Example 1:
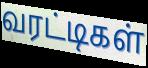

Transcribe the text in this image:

வரட்டிகள்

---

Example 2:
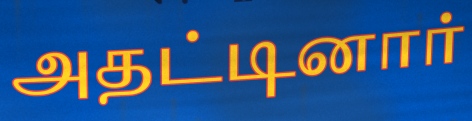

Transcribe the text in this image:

அதட்டினார்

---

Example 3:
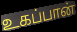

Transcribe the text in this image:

உகப்பான்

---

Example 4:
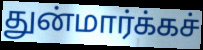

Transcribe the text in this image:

துன்மார்க்கச்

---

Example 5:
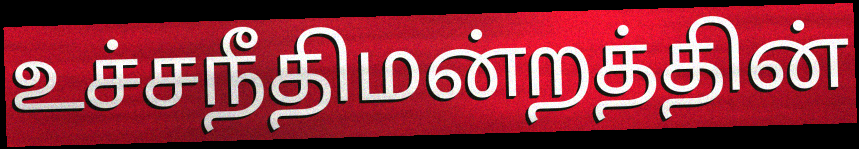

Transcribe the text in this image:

உச்சநீதிமன்றத்தின்